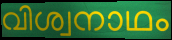
വിശ്വനാഥം